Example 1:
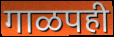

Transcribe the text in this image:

गाळपही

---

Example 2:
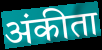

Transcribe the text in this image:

अंकीता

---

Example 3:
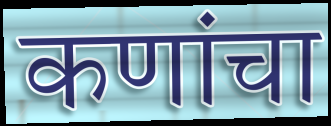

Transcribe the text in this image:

कणांचा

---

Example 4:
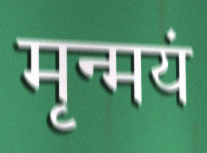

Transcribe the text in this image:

मृन्मयं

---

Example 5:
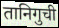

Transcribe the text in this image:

तानिगुची